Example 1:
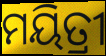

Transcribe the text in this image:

ମୟିତ୍ରୀ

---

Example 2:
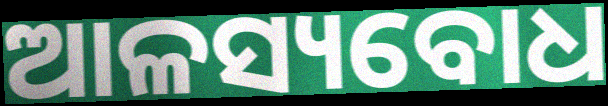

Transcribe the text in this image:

ଆଳସ୍ୟବୋଧ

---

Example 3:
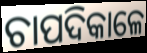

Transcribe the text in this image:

ଚାପଦିକାଳେ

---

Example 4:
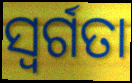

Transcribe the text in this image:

ସ୍ୱର୍ଗତା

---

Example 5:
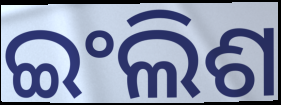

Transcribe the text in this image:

ଇଂଲିଶ